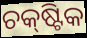
ଚକ୍‌ଷ୍ଟିକ